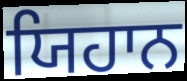
ਯਿਹਾਨ